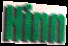
Hinn